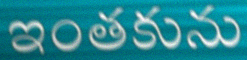
ఇంతకును